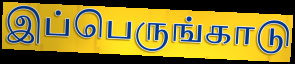
இப்பெருங்காடு